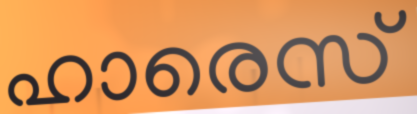
ഹാരെസ്